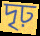
দৃঢ়